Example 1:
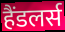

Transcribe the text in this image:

हैंडलर्स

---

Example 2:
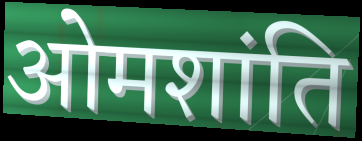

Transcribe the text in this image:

ओमशांति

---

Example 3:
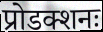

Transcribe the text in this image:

प्रोडक्शनः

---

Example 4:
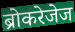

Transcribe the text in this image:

ब्रोकरेजेज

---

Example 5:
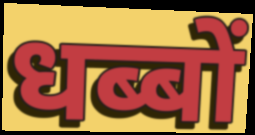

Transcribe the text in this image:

धब्बों